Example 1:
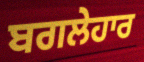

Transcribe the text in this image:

ਬਗਲੇਹਾਰ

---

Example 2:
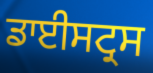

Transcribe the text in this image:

ਡਾਈਸਟ੍ਰਸ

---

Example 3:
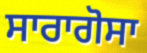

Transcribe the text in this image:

ਸਾਰਾਗੋਸਾ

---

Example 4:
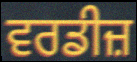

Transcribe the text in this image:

ਵਰਡੀਜ਼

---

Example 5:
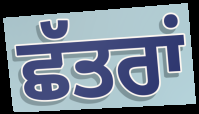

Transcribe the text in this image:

ਛੱਤਰਾਂ